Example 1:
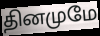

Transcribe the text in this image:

தினமுமே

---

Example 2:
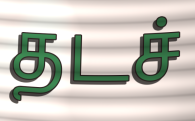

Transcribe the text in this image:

தடச்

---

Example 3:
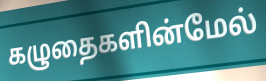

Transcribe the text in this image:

கழுதைகளின்மேல்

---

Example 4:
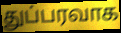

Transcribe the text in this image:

துப்பரவாக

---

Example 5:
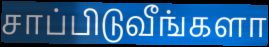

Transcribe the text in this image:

சாப்பிடுவீங்களா